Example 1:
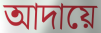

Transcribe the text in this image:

আদায়ে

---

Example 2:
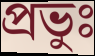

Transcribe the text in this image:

প্রভুঃ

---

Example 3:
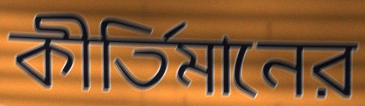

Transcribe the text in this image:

কীর্তিমানের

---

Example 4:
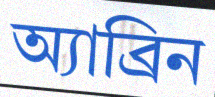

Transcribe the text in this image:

অ্যাব্রিন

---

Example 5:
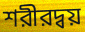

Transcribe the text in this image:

শরীরদ্বয়